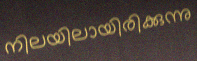
നിലയിലായിരിക്കുന്നു